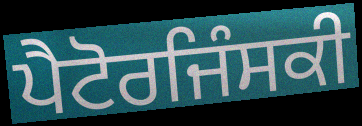
ਪੈਟੋਰਜਿੰਸਕੀ